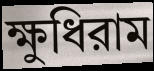
ক্ষুধিরাম